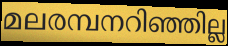
മലരമ്പനറിഞ്ഞില്ല